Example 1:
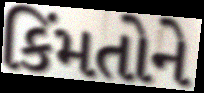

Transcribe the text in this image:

કિંમતોને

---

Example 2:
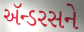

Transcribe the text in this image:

ઍન્ડરસને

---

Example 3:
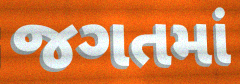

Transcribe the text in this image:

જગતમાં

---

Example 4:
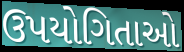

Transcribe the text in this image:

ઉપયોગિતાઓ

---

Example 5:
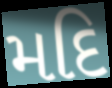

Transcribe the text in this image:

મદિ